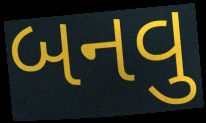
બનવુ